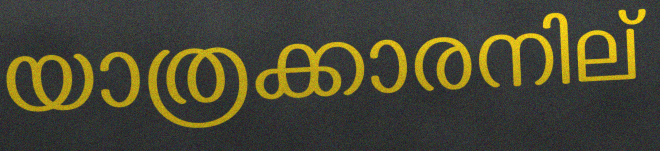
യാത്രക്കാരനില്